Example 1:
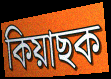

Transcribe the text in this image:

কিয়াছক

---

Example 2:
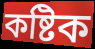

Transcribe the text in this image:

কষ্টিক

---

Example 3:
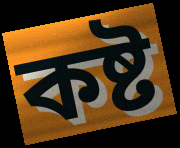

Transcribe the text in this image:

কষ্ট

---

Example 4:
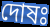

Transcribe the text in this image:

দোষঃ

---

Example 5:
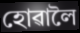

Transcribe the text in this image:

হোৱালৈ